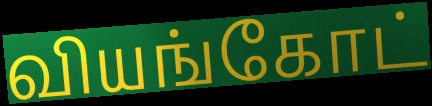
வியங்கோட்